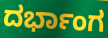
ದರ್ಭಾಂಗ